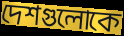
দেশগুলোকে